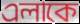
এলাকে